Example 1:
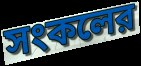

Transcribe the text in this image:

সংকলের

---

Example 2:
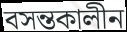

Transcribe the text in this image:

বসন্তকালীন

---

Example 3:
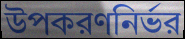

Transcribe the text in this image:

উপকরণনির্ভর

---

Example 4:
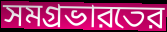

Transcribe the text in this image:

সমগ্রভারতের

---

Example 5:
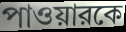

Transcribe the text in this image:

পাওয়ারকে